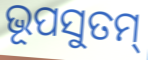
ଭୂପସୁତମ୍